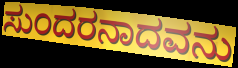
ಸುಂದರನಾದವನು